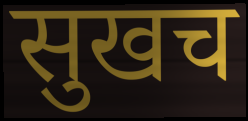
सुखच